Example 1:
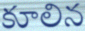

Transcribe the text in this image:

కూలిన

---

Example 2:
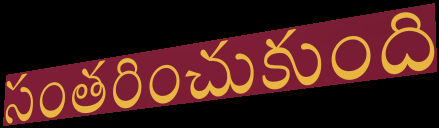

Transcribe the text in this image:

సంతరించుకుంది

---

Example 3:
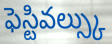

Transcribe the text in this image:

ఫెస్టివల్స్కు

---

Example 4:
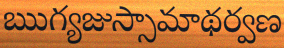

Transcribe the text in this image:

ఋగ్యజుస్సామాథర్వణ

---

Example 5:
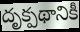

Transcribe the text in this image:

దృక్పథానికీ